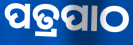
ପତ୍ରପାଠ